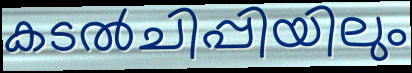
കടൽചിപ്പിയിലും